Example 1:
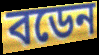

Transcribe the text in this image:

বডেন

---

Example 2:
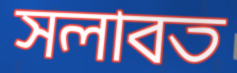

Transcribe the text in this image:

সলাবত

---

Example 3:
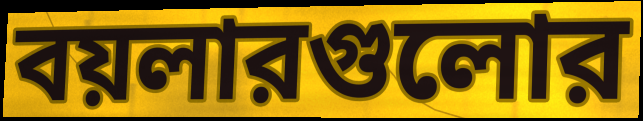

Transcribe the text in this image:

বয়লারগুলোর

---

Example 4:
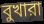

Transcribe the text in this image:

বুখারা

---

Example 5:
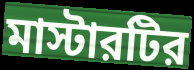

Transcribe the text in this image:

মাস্টারটির